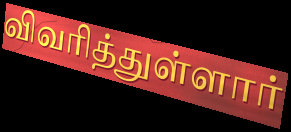
விவரித்துள்ளார்